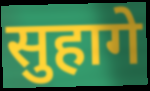
सुहागे